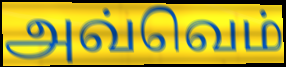
அவ்வெம்